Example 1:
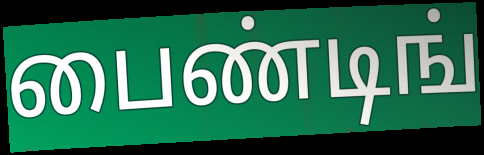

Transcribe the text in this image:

பைண்டிங்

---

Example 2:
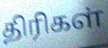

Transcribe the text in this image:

திரிகள்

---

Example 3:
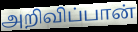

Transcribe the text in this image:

அறிவிப்பான்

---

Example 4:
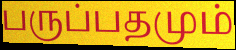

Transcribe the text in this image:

பருப்பதமும்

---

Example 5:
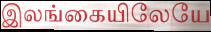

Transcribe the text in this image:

இலங்கையிலேயே